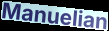
Manuelian